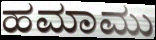
ಹಮಾಮು